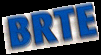
BRTE